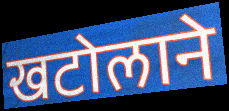
खटोलाने